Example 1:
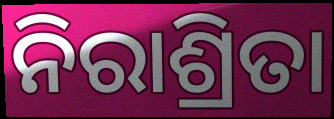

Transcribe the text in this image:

ନିରାଶ୍ରିତା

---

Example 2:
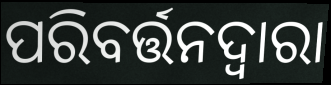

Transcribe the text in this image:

ପରିବର୍ତ୍ତନଦ୍ୱାରା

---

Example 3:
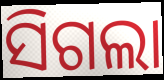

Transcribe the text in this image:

ସିଗଲା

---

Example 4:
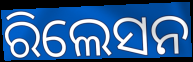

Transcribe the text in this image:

ରିଲେସନ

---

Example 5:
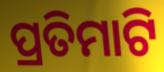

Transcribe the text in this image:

ପ୍ରତିମାଟି